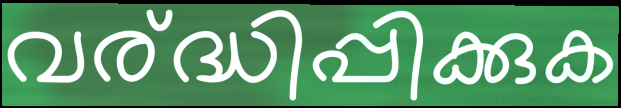
വര്ദ്ധിപ്പിക്കുക